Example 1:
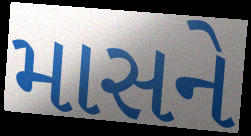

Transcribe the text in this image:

માસને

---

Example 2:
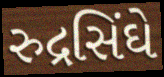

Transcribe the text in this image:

રુદ્રસિંઘે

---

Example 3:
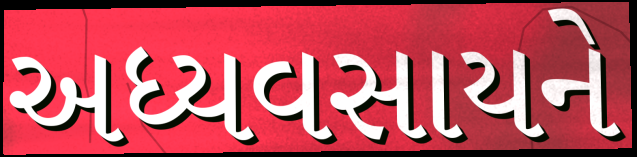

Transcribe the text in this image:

અધ્યવસાયને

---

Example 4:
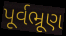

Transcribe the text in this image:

પૂર્વભ્રૂણ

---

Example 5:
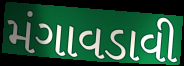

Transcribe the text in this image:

મંગાવડાવી